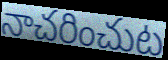
నాచరించుట